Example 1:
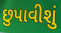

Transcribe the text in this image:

છુપાવીશું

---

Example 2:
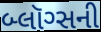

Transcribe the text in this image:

બ્લૉગ્સની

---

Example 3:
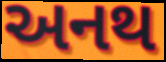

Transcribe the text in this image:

અનથ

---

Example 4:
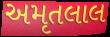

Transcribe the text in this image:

અમૃતલાલ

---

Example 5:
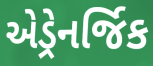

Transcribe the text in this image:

એડ્રેનર્જિક